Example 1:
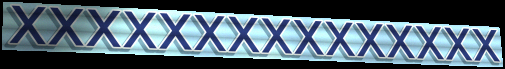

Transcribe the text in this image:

xxxxxxxxxxxxxxx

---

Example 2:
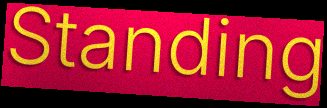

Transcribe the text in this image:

Standing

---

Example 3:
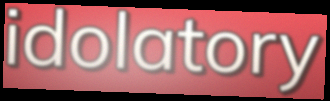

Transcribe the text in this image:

idolatory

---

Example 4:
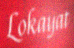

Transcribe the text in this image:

Lokayat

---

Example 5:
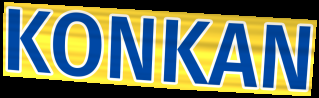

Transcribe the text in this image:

KONKAN